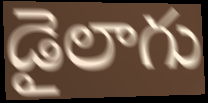
డైలాగు